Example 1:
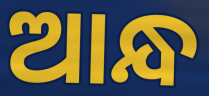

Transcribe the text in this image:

ଆନ୍ଧ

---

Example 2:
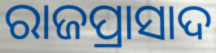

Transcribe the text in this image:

ରାଜପ୍ରାସାଦ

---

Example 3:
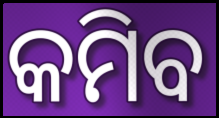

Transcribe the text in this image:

କମିବ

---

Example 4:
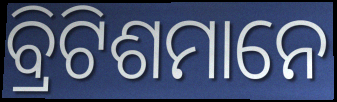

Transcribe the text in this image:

ବ୍ରିଟିଶମାନେ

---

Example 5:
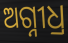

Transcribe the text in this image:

ଅଗ୍ନୀଧ୍ର